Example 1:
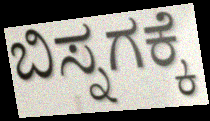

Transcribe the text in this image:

ಬಿಸ್ನಗಕ್ಕೆ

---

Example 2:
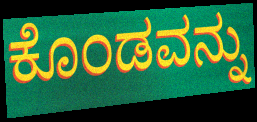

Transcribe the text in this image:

ಕೊಂಡವನ್ನು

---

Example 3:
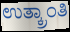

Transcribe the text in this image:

ಉತ್ಕ್ರಾಂತಿ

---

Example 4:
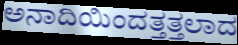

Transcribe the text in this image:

ಅನಾದಿಯಿಂದತ್ತತ್ತಲಾದ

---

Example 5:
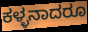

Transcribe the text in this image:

ಕಳ್ಳನಾದರೂ